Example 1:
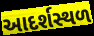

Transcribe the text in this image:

આદર્શસ્થળ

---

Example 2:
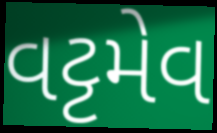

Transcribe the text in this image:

વટ્ટમેવ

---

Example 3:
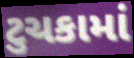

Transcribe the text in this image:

ટુચકામાં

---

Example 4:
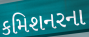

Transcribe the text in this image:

કમિશનરના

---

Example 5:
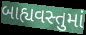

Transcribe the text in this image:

બાહ્યવસ્તુમાં